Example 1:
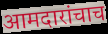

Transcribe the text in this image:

आमदारांचाच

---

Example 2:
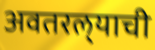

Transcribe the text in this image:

अवतरल्याची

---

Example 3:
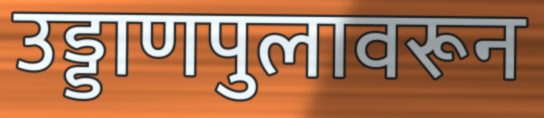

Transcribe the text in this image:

उड्डाणपुलावरून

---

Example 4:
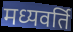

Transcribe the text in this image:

मध्यवर्ति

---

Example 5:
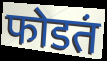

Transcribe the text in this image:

फोडतं